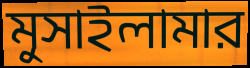
মুসাইলামার